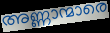
അണ്ണാന്മാരെ